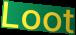
Loot